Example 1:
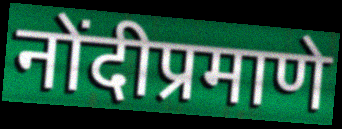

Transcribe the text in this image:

नोंदीप्रमाणे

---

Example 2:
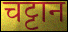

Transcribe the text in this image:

चट्टान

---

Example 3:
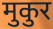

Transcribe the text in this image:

मुकुर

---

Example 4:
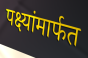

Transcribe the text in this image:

पक्ष्यांमार्फत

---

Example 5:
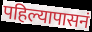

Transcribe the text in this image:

पहिल्यापासनं